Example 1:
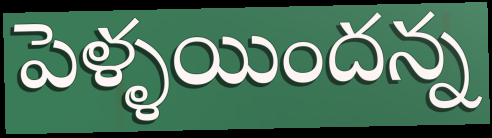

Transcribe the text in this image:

పెళ్ళయిందన్న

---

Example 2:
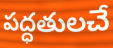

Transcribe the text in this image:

పద్ధతులచే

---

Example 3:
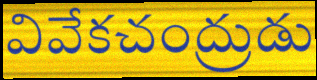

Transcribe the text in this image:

వివేకచంద్రుడు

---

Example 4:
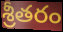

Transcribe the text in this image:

శ్రీతరం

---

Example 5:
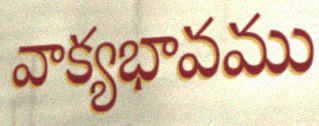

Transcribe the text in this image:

వాక్యభావము